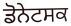
ਡੋਨੇਟਸਕ